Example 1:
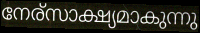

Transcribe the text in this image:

നേര്സാക്ഷ്യമാകുന്നു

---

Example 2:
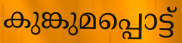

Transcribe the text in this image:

കുങ്കുമപ്പൊട്ട്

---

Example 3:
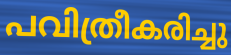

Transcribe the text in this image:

പവിത്രീകരിച്ചു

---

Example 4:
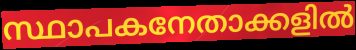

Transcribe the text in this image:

സ്ഥാപകനേതാക്കളിൽ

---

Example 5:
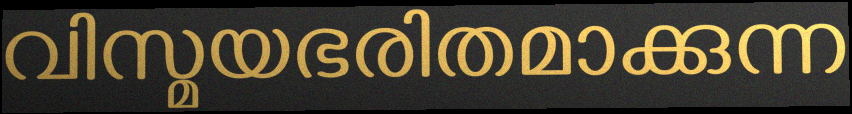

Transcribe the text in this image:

വിസ്മയഭരിതമാക്കുന്ന